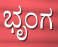
ಭೃಂಗ